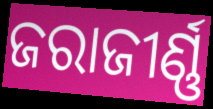
ଜରାଜୀର୍ଣ୍ଣ